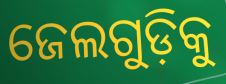
ଜେଲଗୁଡ଼ିକୁ